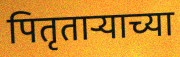
पितृताऱ्याच्या